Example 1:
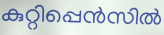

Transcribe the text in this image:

കുറ്റിപ്പെൻസിൽ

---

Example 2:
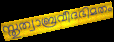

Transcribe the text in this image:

സ്തുത്വാബ്രവീദഭിമതം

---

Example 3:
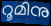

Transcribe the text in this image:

റൂമിനു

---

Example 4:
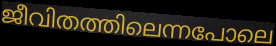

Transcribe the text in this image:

ജീവിതത്തിലെന്നപോലെ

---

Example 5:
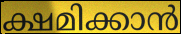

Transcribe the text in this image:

ക്ഷമിക്കാൻ